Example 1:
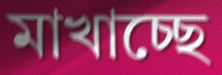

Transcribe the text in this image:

মাখাচ্ছে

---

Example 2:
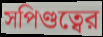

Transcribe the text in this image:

সপিণ্ডত্বের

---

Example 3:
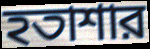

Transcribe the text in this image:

হতাশার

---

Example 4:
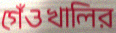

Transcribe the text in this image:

গেঁওখালির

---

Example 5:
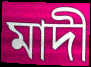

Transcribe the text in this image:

মাদী